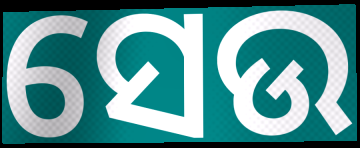
ସେଉ